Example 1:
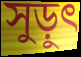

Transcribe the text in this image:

সুড়ুৎ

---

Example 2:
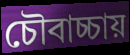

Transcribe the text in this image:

চৌবাচ্চায়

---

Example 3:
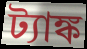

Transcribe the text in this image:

ট্যাঙ্ক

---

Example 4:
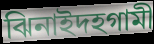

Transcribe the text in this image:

ঝিনাইদহগামী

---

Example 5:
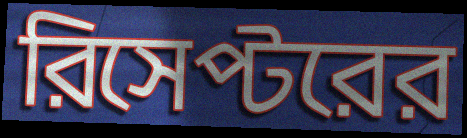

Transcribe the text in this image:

রিসেপ্টরের